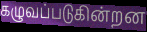
கழுவப்படுகின்றன